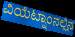
ವಿಯೆಟ್ನಾಂನಲ್ಲಿನ